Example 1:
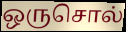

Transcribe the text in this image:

ஒருசொல்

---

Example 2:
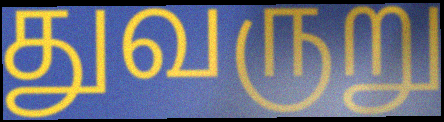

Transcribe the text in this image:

துவருறு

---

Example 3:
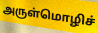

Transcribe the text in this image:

அருள்மொழிச்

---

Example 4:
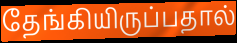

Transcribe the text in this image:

தேங்கியிருப்பதால்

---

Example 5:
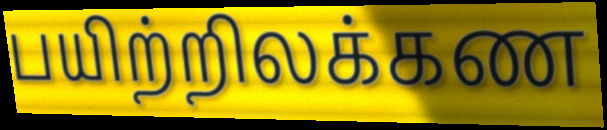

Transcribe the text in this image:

பயிற்றிலக்கண